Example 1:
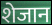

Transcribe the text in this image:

शेजान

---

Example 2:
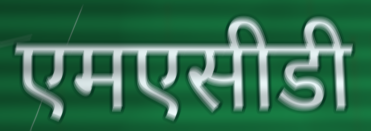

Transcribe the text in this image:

एमएसीडी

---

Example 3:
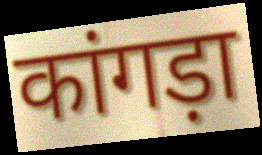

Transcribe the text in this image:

कांगड़ा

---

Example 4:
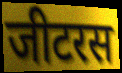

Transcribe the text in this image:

जीटरस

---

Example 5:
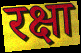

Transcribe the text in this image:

रक्षा